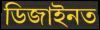
ডিজাইনত